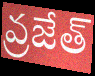
వ్రజేత్